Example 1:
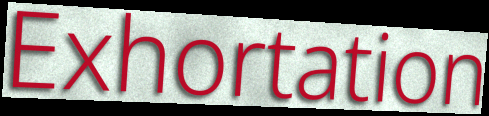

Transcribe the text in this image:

Exhortation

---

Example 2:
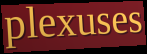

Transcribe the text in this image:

plexuses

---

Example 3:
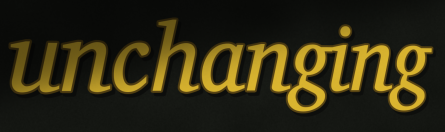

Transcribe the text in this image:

unchanging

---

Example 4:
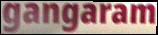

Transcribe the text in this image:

gangaram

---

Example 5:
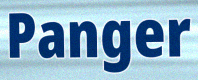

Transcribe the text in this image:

Panger